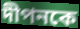
দীপনকে